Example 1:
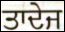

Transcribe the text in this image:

ਤਾਦੇਜ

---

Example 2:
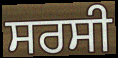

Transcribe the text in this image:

ਸਰਸੀ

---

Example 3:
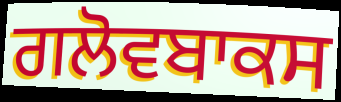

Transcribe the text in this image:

ਗਲੋਵਬਾਕਸ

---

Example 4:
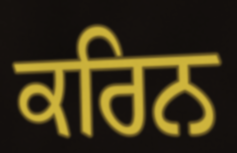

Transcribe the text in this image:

ਕਰਿਨ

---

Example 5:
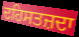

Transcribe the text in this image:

ਦਹਿਸਤਜ਼ਦਾ